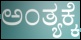
ಅಂತ್ಯಕ್ಕೆ